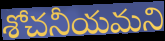
శోచనీయమని